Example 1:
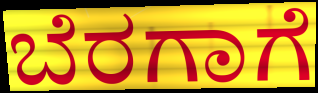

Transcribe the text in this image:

ಬೆರಗಾಗೆ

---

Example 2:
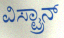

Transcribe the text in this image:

ವಿಸ್ಟ್ರಾನ್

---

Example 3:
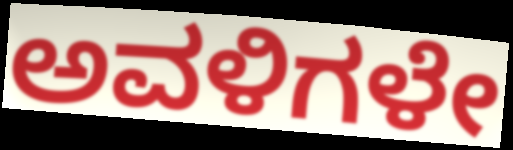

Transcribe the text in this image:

ಅವಳಿಗಳೇ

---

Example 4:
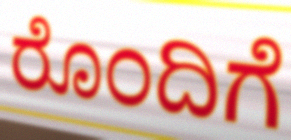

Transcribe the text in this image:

ರೊಂದಿಗೆ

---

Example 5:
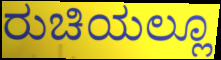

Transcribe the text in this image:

ರುಚಿಯಲ್ಲೂ